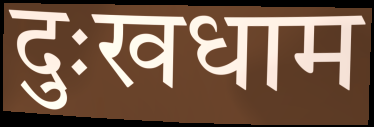
दुःखधाम